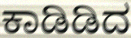
ಕಾಡಿಡಿದ